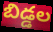
బిడ్డల